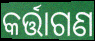
କର୍ତ୍ତାଗଣ